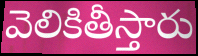
వెలికితీస్తారు